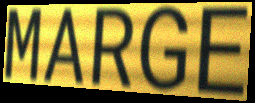
MARGE